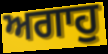
ਅਗਾਹੁ